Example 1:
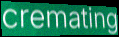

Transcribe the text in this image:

cremating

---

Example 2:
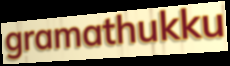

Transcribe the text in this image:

gramathukku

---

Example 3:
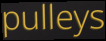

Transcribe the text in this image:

pulleys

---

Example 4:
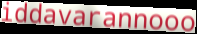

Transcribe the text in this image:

iddavarannooo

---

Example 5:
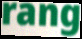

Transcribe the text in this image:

rang